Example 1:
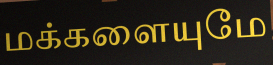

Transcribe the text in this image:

மக்களையுமே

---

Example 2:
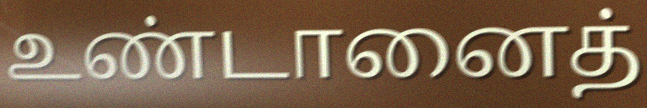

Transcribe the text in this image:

உண்டானைத்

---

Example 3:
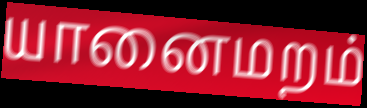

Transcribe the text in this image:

யானைமறம்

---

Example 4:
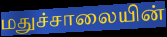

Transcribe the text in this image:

மதுச்சாலையின்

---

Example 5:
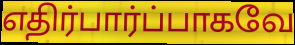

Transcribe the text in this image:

எதிர்பார்ப்பாகவே